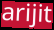
arijit